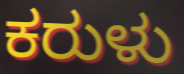
ಕರುಳು